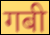
गबी